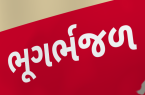
ભૂગર્ભજળ